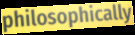
philosophically